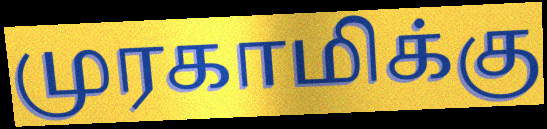
முரகாமிக்கு